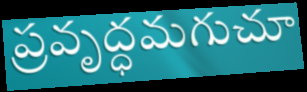
ప్రవృద్ధమగుచూ